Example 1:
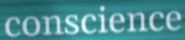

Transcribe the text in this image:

conscience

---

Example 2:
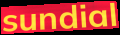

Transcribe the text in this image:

sundial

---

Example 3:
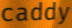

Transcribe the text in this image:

caddy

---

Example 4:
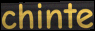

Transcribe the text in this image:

chinte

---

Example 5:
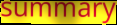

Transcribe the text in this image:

summary